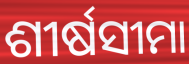
ଶୀର୍ଷସୀମା